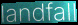
landfall